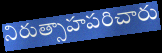
నిరుత్సాహపరిచారు